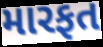
મારફત